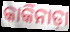
କାକିନାଡ଼ା